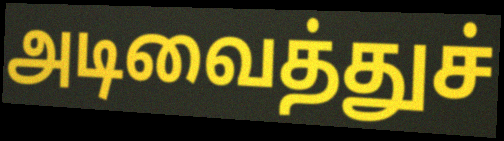
அடிவைத்துச்